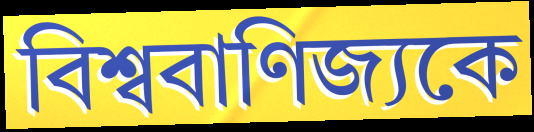
বিশ্ববাণিজ্যকে